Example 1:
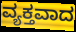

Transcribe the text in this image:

ವ್ಯಕ್ತವಾದ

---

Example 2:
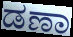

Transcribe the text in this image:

ಡಣಾ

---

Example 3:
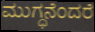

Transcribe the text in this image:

ಮುಗ್ಧನೆಂದರೆ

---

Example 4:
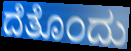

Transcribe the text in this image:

ದೆತೊಂದು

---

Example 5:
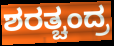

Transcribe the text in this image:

ಶರತ್ಚಂದ್ರ